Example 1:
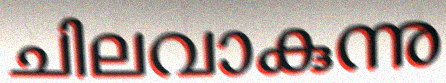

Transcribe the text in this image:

ചിലവാകുന്നു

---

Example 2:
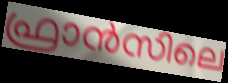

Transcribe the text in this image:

ഫ്രാൻസിലെ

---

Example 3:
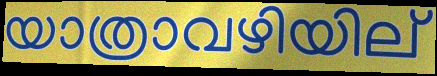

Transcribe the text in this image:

യാത്രാവഴിയില്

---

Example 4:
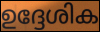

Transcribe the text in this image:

ഉദ്ദേശിക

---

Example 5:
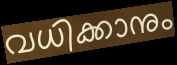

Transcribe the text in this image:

വധിക്കാനും